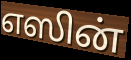
எஸின்